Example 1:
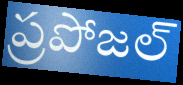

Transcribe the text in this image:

ప్రపోజల్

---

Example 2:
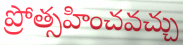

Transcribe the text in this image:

ప్రోత్సహించవచ్చు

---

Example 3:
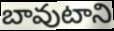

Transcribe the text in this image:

బావుటాని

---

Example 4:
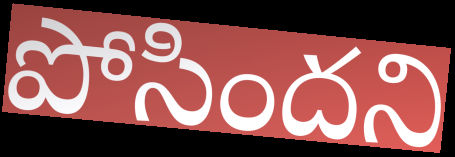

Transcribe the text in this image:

పోసిందని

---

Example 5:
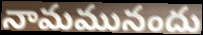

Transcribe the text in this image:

నామమునందు